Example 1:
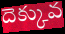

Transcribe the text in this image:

దెక్కువ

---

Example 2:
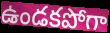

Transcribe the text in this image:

ఉండకపోగా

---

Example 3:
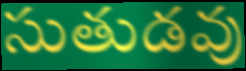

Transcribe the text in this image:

సుతుడవు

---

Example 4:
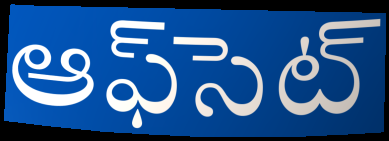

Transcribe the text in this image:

ఆఫ్‌సెట్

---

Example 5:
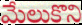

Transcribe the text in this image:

మేలుకొని